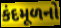
કંદમૂળનો